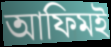
আফিমই